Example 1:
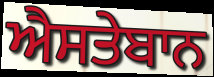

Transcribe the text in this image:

ਐਸਤੇਬਾਨ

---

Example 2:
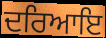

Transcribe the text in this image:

ਦਰਿਆਇ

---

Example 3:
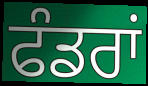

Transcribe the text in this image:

ਫੰਡਰਾਂ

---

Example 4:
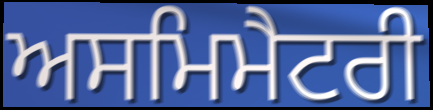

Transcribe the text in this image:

ਅਸਮਿਮੈਟਰੀ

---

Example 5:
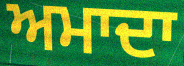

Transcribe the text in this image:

ਅਮਾਦਾ